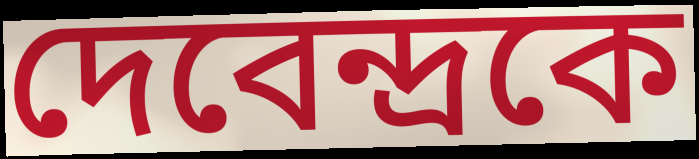
দেবেন্দ্রকে